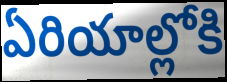
ఏరియాల్లోకి